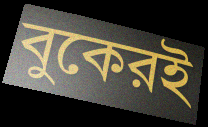
বুকেরই